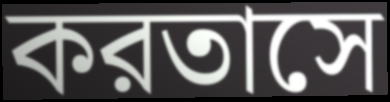
করতাসে